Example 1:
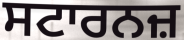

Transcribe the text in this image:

ਸਟਾਰਨਜ਼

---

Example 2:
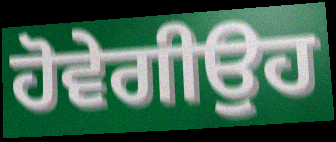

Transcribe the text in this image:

ਹੋਵੇਗੀਉਹ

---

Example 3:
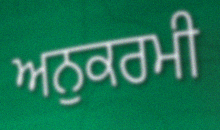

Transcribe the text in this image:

ਅਨੁਕਰਮੀ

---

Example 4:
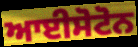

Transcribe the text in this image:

ਆਈਸੋਟੋਨ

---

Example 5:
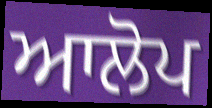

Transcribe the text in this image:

ਆਲੋਪ